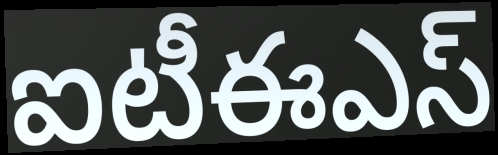
ఐటీఈఎస్